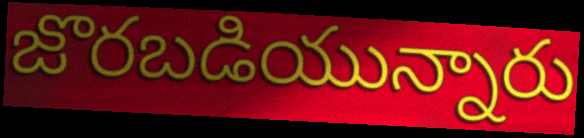
జొరబడియున్నారు